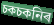
চকচকনিৰ